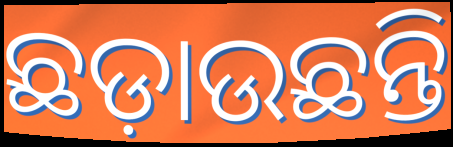
ଛଡ଼ାଉଛନ୍ତି